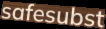
safesubst